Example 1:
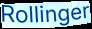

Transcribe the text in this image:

Rollinger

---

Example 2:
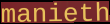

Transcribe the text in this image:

manieth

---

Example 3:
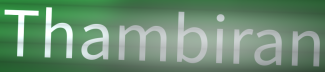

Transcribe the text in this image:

Thambiran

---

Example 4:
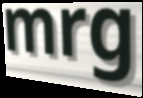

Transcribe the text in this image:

mrg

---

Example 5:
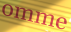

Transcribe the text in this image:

omme